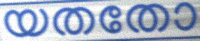
യതതോ